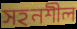
সহনশীল